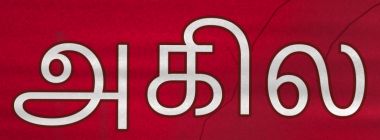
அகில